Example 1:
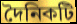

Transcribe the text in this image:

দৈনিকটি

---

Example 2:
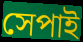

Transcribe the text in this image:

সেপাই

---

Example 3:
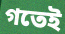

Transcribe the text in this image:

গতেই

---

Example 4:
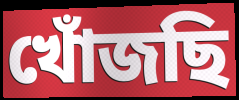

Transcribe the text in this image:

খোঁজছি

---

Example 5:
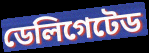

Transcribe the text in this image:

ডেলিগেটেড